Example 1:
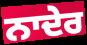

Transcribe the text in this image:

ਨਾਦੇਰ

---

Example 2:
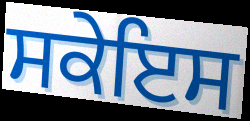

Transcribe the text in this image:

ਸਕੇਇਸ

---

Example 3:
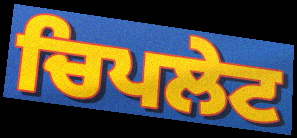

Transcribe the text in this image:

ਚਿਪਲੇਟ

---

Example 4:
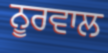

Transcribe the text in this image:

ਨੂਰਵਾਲ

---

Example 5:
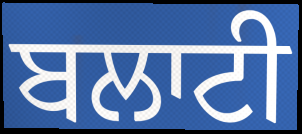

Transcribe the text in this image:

ਬਲਾਟੀ